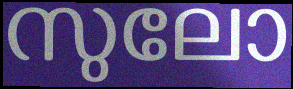
സുലോ